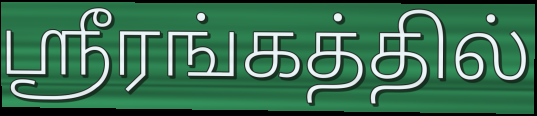
ஸ்ரீரங்கத்தில்